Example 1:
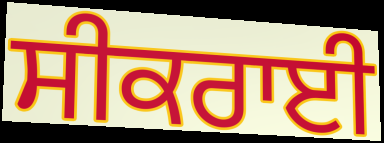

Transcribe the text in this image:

ਸੀਕਰਾਈ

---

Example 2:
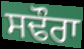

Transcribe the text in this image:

ਸਢੌਰਾ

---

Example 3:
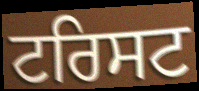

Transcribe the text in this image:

ਟਰਿਸਟ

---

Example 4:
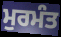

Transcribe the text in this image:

ਮੁਰਮੰਤ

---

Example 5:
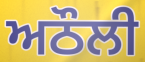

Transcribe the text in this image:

ਅਠੌਲੀ